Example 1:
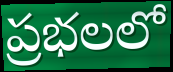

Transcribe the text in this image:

ప్రభలలో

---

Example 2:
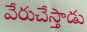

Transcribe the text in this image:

వేరుచేస్తాడు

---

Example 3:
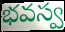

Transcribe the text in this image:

భవస్వ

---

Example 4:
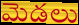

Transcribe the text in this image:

మెడలు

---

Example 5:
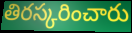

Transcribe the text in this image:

తిరస్కరించారు